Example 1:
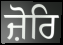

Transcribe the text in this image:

ਜ਼ੋਰਿ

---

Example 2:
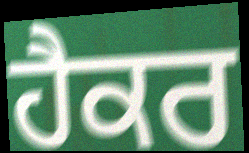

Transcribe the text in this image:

ਹੈਕਰ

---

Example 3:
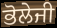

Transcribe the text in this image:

ਭੋਲੇਜੀ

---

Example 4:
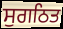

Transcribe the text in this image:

ਸੁਗਠਿਤ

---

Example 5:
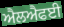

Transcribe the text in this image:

ਐਲਐਫਈ